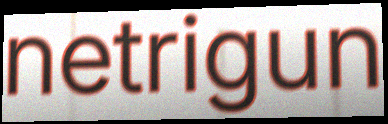
netrigun